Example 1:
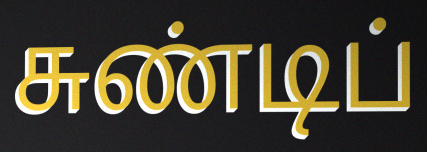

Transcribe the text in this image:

சுண்டிப்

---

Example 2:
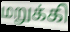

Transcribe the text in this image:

மறுக்கி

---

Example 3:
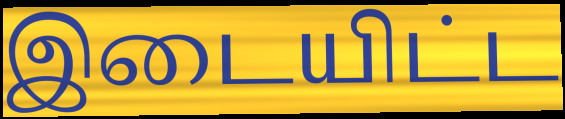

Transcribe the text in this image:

இடையிட்ட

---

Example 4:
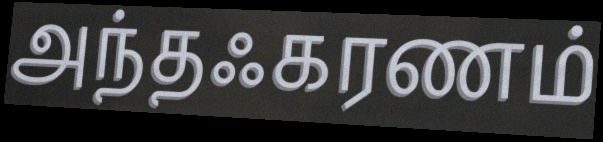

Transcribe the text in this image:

அந்தஃகரணம்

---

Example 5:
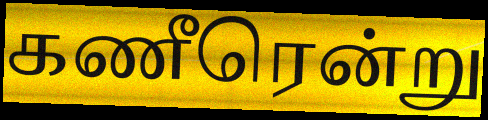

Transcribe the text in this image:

கணீரென்று